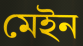
মেইন